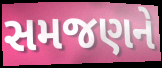
સમજણને